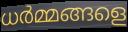
ധർമ്മങ്ങളെ